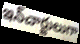
ఇన్‌చార్జులుగా